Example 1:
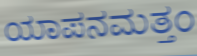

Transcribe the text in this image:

ಯಾಪನಮತ್ತಂ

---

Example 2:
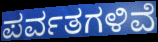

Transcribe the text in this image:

ಪರ್ವತಗಳಿವೆ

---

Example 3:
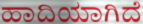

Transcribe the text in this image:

ಹಾದಿಯಾಗಿದೆ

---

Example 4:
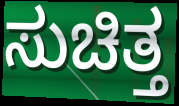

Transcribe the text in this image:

ಸುಚಿತ್ತ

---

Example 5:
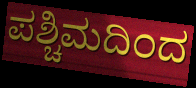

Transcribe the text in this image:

ಪಶ್ಚಿಮದಿಂದ